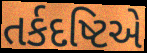
તર્કદષ્ટિએ